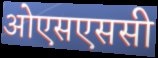
ओएसएससी